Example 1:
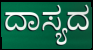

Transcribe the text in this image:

ದಾಸ್ಯದ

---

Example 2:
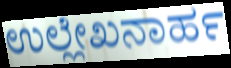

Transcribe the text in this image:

ಉಲ್ಲೇಖನಾರ್ಹ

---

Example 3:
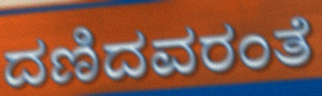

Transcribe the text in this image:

ದಣಿದವರಂತೆ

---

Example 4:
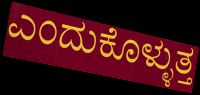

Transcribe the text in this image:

ಎಂದುಕೊಳ್ಳುತ್ತ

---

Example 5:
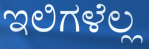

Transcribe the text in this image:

ಇಲಿಗಳೆಲ್ಲ